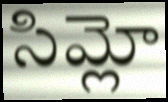
సిమ్లో